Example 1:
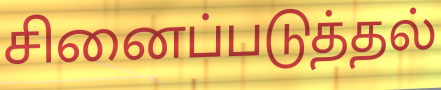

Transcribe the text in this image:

சினைப்படுத்தல்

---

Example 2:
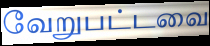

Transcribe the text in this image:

வேறுபட்டவை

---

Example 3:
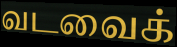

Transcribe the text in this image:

வடவைக்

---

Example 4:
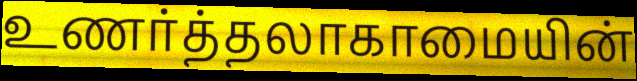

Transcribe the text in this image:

உணர்த்தலாகாமையின்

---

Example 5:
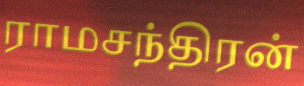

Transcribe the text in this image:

ராமசந்திரன்